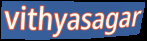
vithyasagar